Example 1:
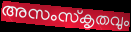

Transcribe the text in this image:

അസംസ്കൃതവും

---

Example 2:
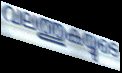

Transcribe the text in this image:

വലത്തുകയ്യുടെ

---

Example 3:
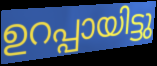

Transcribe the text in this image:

ഉറപ്പായിട്ടു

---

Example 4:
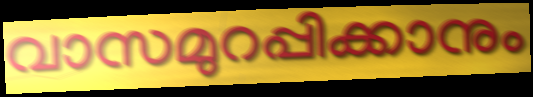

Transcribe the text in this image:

വാസമുറപ്പിക്കാനും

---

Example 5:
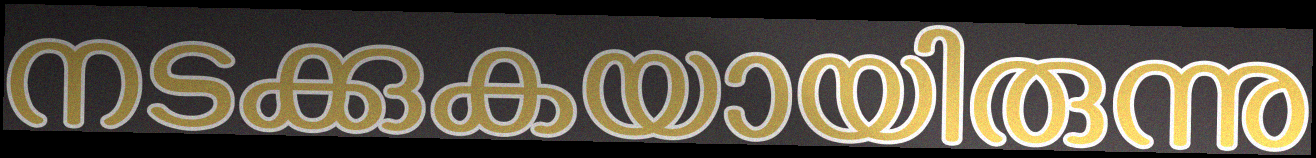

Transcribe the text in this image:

നടക്കുകയായിരുന്നു